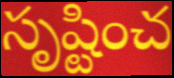
సృష్టించ